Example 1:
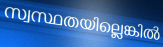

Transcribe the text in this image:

സ്വസ്ഥതയില്ലെങ്കിൽ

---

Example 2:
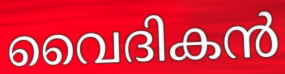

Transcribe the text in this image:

വൈദികൻ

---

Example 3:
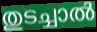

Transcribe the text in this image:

തുടച്ചാൽ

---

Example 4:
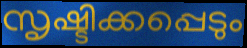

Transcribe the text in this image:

സൃഷ്ടിക്കപ്പെടും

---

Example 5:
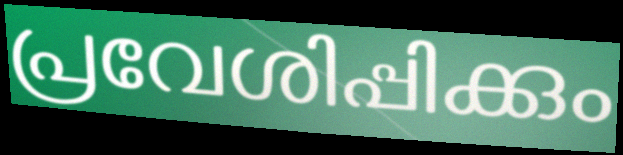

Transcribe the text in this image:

പ്രവേശിപ്പിക്കും